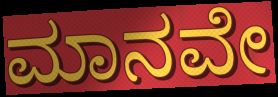
ಮಾನವೇ